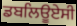
ਡਬਲਿਊਏਸੀ